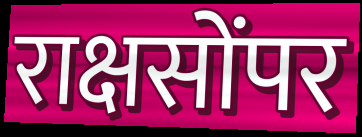
राक्षसोंपर